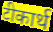
टीकार्थ